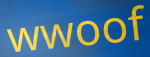
wwoof